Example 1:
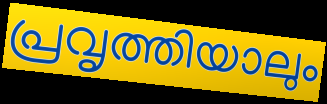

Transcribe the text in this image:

പ്രവൃത്തിയാലും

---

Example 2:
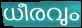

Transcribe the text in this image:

ധീരവും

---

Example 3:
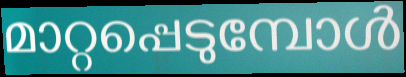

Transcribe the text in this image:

മാറ്റപ്പെടുമ്പോൾ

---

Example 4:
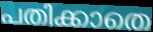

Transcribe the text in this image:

പതിക്കാതെ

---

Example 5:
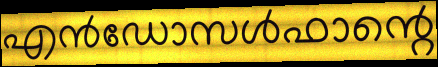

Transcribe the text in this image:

എൻഡോസൾഫാന്റെ